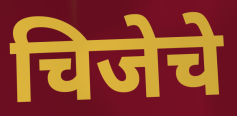
चिजेचे